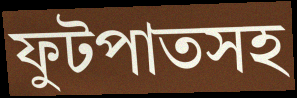
ফুটপাতসহ